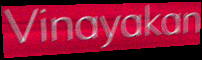
Vinayakan